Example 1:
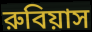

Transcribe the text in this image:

রুবিয়াস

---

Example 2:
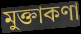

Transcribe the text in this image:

মুক্তাকণা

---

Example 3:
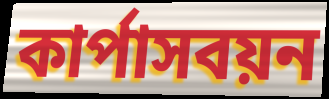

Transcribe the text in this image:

কার্পাসবয়ন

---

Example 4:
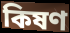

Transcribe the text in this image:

কিষণ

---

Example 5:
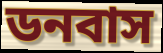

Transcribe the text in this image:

ডনবাস